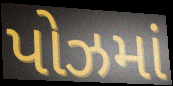
પોઝમાં